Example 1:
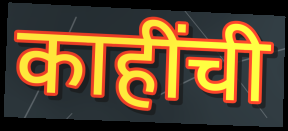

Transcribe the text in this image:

काहींची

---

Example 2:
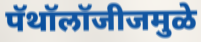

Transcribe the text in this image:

पॅथॉलॉजीजमुळे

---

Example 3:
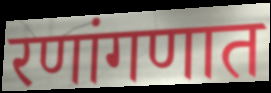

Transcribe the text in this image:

रणांगणात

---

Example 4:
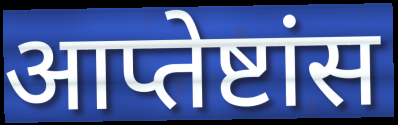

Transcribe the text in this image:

आप्तेष्टांस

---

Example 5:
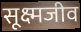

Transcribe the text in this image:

सूक्ष्मजीव